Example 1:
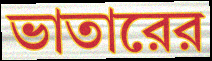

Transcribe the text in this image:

ভাতারের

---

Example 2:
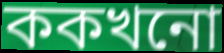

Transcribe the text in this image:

ককখনো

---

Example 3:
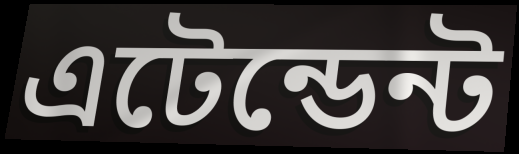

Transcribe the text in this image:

এটেন্ডেন্ট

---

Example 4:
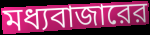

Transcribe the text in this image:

মধ্যবাজারের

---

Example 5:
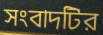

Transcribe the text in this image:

সংবাদটির